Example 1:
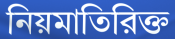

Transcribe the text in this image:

নিয়মাতিরিক্ত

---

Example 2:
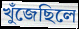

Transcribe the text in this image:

খুঁজেছিলে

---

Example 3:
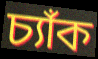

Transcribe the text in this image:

চ্যাঁক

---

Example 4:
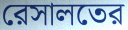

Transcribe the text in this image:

রেসালতের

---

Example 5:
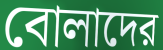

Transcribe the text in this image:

বোলাদের